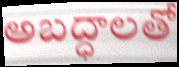
అబద్ధాలతో